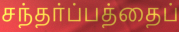
சந்தர்ப்பத்தைப்